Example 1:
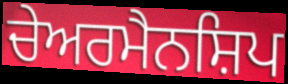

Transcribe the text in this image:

ਚੇਅਰਮੈਨਸ਼ਿਪ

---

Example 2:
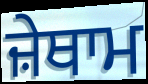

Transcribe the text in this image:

ਜ਼ੇਥਾਮ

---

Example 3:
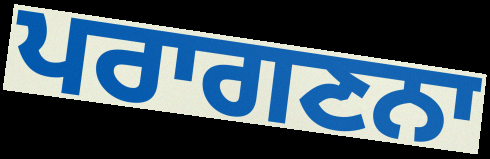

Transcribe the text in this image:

ਪਰਾਗਣਨਾ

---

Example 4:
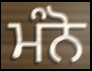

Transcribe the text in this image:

ਮੰਨੋ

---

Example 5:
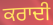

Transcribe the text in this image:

ਕਰਾਦੀ